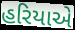
હરિયાએ